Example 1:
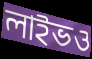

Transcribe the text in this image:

লাইভও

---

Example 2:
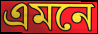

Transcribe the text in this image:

এমনে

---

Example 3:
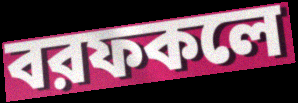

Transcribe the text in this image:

বরফকলে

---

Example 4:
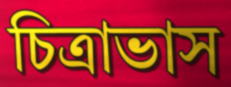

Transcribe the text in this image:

চিত্রাভাস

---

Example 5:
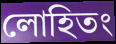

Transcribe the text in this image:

লোহিতং